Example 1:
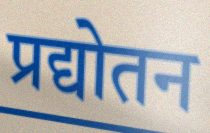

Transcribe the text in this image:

प्रद्योतन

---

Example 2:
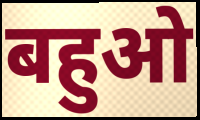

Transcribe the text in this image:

बहुओ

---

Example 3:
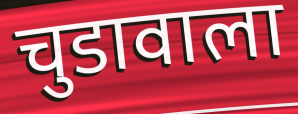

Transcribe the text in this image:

चुडावाला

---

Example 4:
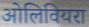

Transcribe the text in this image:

ओलिवियरा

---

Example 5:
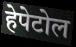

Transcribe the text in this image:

हेपेटोल